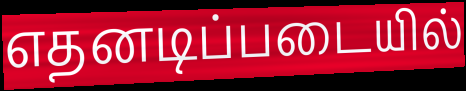
எதனடிப்படையில்